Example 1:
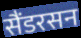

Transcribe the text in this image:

सैंडरसन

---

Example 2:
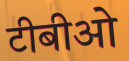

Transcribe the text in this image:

टीबीओ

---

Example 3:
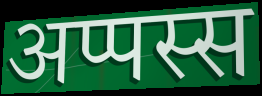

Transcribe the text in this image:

अप्पस्स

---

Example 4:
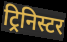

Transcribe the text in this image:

ट्रिनिस्टर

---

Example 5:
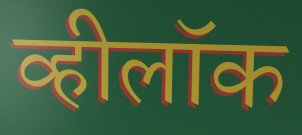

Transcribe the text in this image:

व्हीलॉक